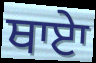
ਥਾਏਾ